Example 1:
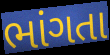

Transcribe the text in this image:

ભાંગતા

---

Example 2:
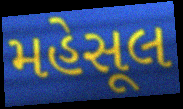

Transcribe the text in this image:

મહેસૂલ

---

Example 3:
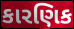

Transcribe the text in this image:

કારણિક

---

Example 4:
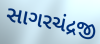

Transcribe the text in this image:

સાગરચંદ્રજી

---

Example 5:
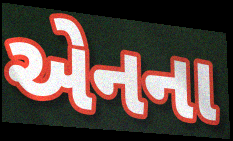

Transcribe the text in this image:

એનના